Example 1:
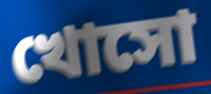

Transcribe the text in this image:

খোসো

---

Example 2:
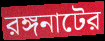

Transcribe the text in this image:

রঙ্গনাটের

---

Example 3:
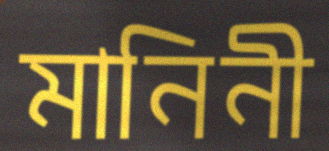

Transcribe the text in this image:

মানিনী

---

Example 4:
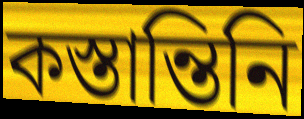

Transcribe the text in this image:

কস্তান্তিনি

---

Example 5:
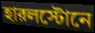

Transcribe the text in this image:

হারলস্টোনে